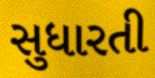
સુધારતી